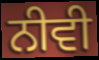
ਨੀਵੀ